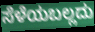
ಸೆಳೆಯಬಲ್ಲದು